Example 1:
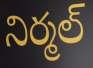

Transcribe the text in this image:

నిర్మల్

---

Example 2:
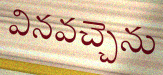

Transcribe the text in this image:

వినవచ్చెను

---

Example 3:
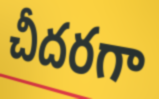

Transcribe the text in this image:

చీదరగా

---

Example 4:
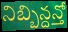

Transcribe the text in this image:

నిబ్బిన్దన్తో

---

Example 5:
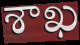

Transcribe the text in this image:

శాఖ